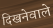
दिखनेवाले